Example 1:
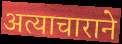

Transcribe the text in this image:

अत्याचाराने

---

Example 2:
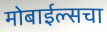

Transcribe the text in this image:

मोबाईल्सचा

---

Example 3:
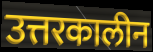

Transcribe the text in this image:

उत्तरकालीन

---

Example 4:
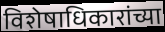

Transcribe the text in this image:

विशेषाधिकारांच्या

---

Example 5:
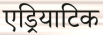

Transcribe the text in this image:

एड्रियाटिक